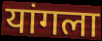
यांगला